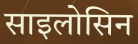
साइलोसिन